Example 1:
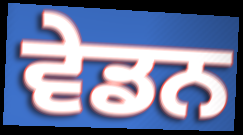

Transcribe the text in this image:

ਵੇਡਨ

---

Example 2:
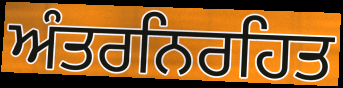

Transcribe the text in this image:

ਅੰਤਰਨਿਰਹਿਤ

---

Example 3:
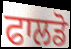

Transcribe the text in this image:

ਫਾਲਡੋ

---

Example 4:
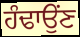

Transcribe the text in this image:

ਹੰਢਾਉਂਣ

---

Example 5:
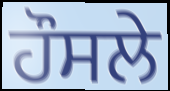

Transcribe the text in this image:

ਹੌਸਲੇ